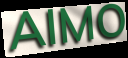
AIMO